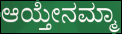
ಆಯ್ತೇನಮ್ಮಾ